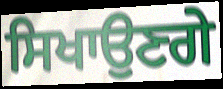
ਸਿਖਾਉਣਗੇ